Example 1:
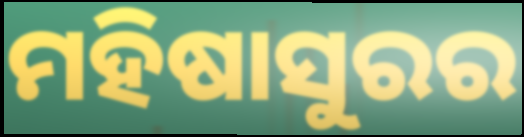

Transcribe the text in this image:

ମହିଷାସୁରର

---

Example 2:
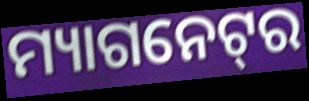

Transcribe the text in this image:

ମ୍ୟାଗନେଟ୍‌ର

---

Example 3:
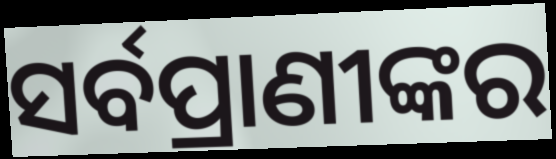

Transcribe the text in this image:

ସର୍ବପ୍ରାଣୀଙ୍କର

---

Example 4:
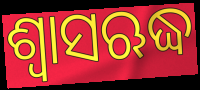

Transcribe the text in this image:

ଶ୍ୱାସଋଦ୍ଧ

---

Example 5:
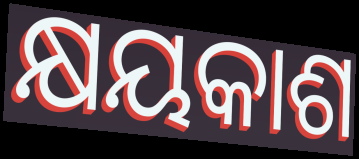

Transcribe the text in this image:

କ୍ଷୟକାଶ